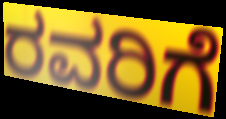
ರವರಿಗೆ